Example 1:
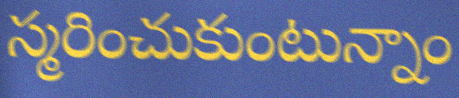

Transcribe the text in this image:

స్మరించుకుంటున్నాం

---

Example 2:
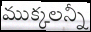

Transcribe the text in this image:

ముక్కలన్నీ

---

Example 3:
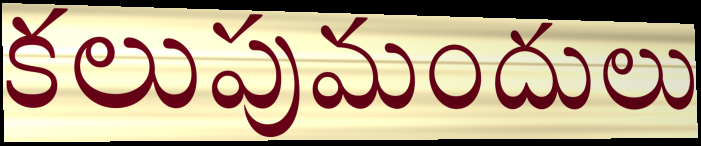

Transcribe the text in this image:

కలుపుమందులు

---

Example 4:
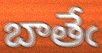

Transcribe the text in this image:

బాతేఁ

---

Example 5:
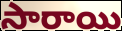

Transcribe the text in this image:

సారాయి